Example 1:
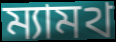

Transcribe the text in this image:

ম্যামথ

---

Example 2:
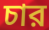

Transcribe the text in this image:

চার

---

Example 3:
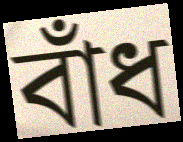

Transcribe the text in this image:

বাঁধ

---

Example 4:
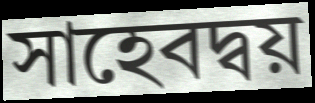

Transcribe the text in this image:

সাহেবদ্বয়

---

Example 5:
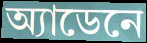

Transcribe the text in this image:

অ্যাডেনে